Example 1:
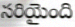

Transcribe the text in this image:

సరియైంది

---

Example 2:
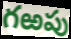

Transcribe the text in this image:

గఱపు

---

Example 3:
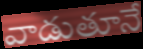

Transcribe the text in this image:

వాడుతూనే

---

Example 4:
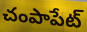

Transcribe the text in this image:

చంపాపేట్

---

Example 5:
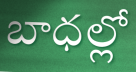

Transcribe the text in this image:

బాధల్లో